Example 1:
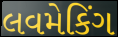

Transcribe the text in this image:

લવમેકિંગ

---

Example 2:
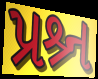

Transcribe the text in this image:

પ્રશ્ર્ન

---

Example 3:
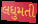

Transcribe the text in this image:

લધુમતી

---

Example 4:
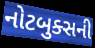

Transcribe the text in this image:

નોટબુક્સની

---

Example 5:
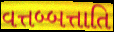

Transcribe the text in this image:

વત્તબ્બત્તાતિ